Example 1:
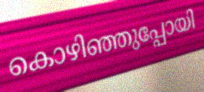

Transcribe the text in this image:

കൊഴിഞ്ഞുപ്പോയി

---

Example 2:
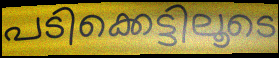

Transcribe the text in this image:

പടിക്കെട്ടിലൂടെ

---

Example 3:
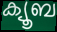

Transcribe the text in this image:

ക്യൂബ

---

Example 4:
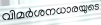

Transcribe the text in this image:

വിമർശനധാരയുടെ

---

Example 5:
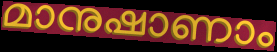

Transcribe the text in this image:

മാനുഷാണാം